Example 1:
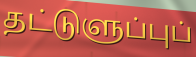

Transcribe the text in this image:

தட்டுளுப்புப்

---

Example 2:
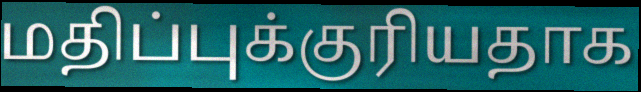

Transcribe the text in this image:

மதிப்புக்குரியதாக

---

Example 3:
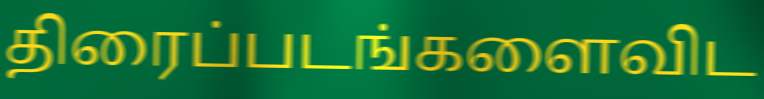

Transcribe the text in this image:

திரைப்படங்களைவிட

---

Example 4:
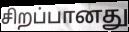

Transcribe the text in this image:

சிறப்பானது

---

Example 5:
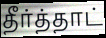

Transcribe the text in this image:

தீர்த்தாட்